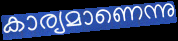
കാര്യമാണെന്നു